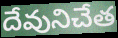
దేవునిచేత